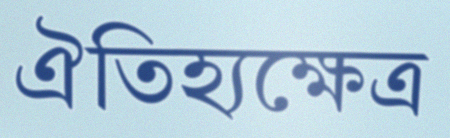
ঐতিহ্যক্ষেত্ৰ